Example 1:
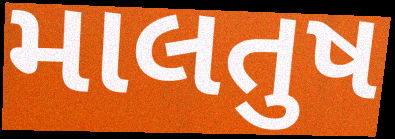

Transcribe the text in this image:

માલતુષ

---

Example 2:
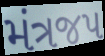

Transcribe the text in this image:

મંત્રજપ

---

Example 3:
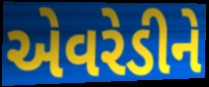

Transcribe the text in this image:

એવરેડીને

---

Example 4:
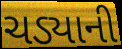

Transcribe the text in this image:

ચડ્યાની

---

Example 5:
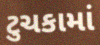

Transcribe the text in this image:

ટુચકામાં